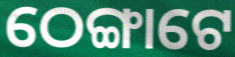
ଠେଙ୍ଗାଟେ